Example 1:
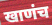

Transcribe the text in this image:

खाणंच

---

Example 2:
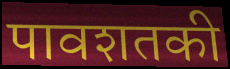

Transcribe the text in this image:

पावशतकी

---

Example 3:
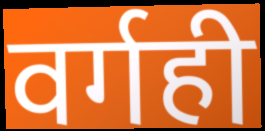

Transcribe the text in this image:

वर्गही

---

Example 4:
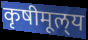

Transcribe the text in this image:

कृषीमूल्य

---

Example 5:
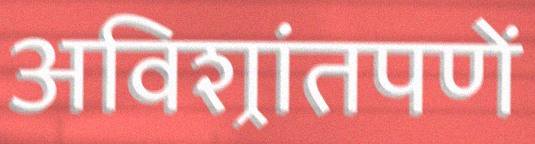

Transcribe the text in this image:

अविश्रांतपणें